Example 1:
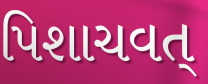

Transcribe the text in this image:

પિશાચવત્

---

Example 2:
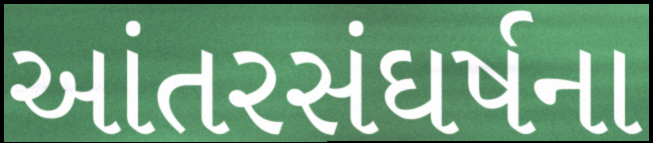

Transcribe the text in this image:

આંતરસંઘર્ષના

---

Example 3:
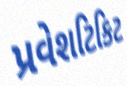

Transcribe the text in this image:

પ્રવેશટિકિટ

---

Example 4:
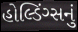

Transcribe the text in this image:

હોલ્ડિંગ્સનું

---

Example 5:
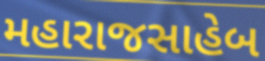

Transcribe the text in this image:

મહારાજસાહેબ